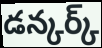
డన్కర్క్